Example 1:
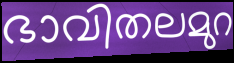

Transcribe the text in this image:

ഭാവിതലമുറ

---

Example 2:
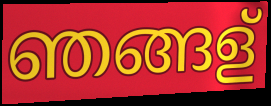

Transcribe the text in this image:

ഞങ്ങള്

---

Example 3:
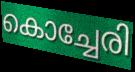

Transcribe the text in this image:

കൊച്ചേരി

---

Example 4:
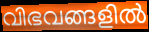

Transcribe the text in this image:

വിഭവങ്ങളിൽ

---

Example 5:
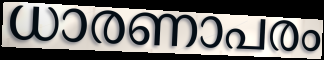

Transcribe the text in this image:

ധാരണാപരം